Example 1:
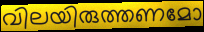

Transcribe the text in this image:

വിലയിരുത്തണമോ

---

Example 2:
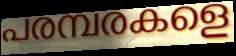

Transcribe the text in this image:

പരമ്പരകളെ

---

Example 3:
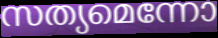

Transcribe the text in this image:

സത്യമെന്നോ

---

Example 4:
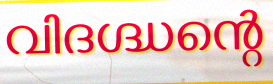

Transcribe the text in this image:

വിദഗ്ദ്ധന്റെ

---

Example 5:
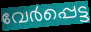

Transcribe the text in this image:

വേർപ്പെട്ട